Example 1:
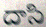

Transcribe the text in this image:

దాసి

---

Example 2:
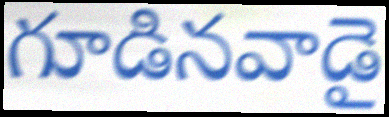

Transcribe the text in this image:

గూడినవాడై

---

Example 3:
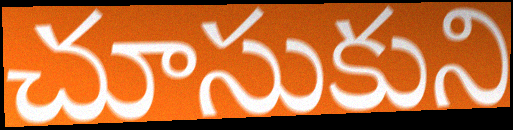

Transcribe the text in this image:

చూసుకుని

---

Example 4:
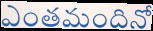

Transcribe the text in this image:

ఎంతమందినో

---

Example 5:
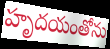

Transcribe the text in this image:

హృదయంతోను